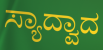
ಸ್ಯಾದ್ವಾದ